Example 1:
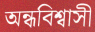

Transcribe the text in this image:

অন্ধবিশ্বাসী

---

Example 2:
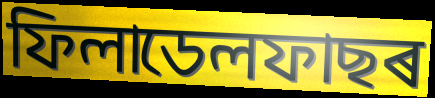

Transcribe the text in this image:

ফিলাডেলফাছৰ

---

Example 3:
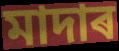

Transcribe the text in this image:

মাদাৰ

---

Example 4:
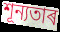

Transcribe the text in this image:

শূন্যতাৰ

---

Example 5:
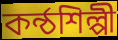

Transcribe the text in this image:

কন্ঠশিল্পী